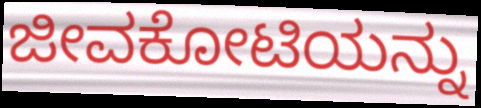
ಜೀವಕೋಟಿಯನ್ನು